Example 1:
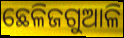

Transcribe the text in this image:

ଛେଳିଜଗୁଆଳି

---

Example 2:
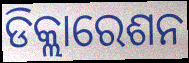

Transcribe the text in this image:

ଡିକ୍ଲାରେଶନ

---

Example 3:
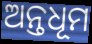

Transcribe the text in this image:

ଅନ୍ତଧୂମ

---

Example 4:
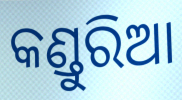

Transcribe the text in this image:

କଣ୍ଡୁରିଆ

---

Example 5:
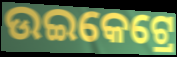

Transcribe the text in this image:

ଉଇକେଟ୍ରେ